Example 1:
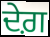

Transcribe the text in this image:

ਦੇਗ਼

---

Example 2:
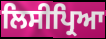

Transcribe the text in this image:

ਲਿਸੀਪ੍ਰਿਆ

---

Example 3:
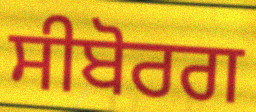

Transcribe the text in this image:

ਸੀਬੋਰਗ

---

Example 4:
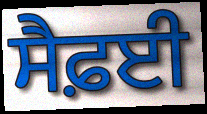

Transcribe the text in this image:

ਸੈਫ਼ਈ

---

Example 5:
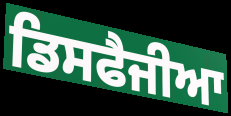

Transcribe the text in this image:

ਡਿਸਫੈਜੀਆ